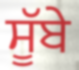
ਸੂੱਬੇ